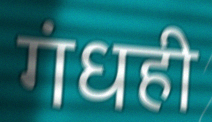
गंधही